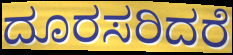
ದೂರಸರಿದರೆ